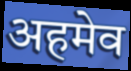
अहमेव